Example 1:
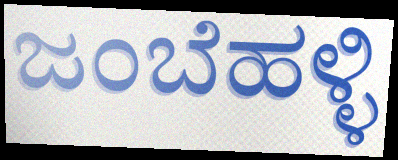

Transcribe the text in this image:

ಜಂಬೆಹಳ್ಳಿ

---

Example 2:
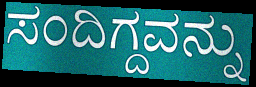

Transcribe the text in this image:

ಸಂದಿಗ್ದವನ್ನು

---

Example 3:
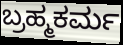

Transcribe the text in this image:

ಬ್ರಹ್ಮಕರ್ಮ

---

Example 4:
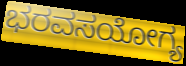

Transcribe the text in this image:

ಭರವಸಯೋಗ್ಯ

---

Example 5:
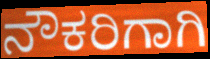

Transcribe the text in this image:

ನೌಕರಿಗಾಗಿ